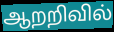
ஆறறிவில்